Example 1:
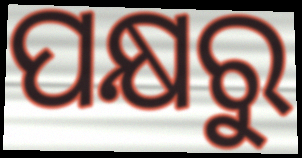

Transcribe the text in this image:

ପକ୍ଷରୁ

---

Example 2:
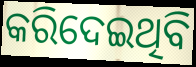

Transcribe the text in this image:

କରିଦେଇଥିବି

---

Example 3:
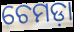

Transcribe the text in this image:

ଚେମଡ଼ା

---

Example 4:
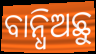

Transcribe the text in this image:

ବାନ୍ଧିଅଛୁ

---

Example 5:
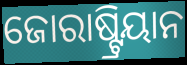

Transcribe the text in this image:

ଜୋରାଷ୍ଟ୍ରିୟାନ